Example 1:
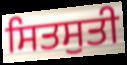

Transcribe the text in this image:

ਸਿਤਸੁਤੀ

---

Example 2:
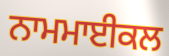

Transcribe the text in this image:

ਨਾਮਮਾਈਕਲ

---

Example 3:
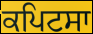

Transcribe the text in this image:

ਕਪਿਟਸਾ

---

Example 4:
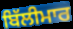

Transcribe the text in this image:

ਬਿੱਲੀਮਾਰ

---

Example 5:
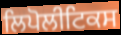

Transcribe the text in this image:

ਲਿਪੋਲੀਟਿਕਸ